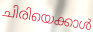
ചിരിയെക്കാൾ